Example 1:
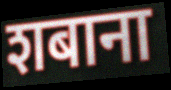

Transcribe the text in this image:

शबाना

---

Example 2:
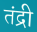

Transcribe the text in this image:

तंद्री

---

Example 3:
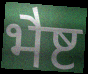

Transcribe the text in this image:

भैष्ट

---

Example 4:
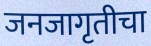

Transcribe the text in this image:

जनजागृतीचा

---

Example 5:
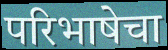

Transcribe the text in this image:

परिभाषेचा